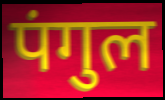
पंगुल